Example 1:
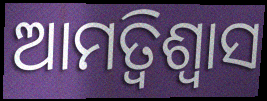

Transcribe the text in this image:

ଆମତ୍ବିଶ୍ୱାସ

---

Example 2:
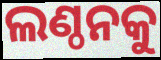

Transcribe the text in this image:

ଲଣ୍ଠନକୁ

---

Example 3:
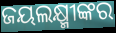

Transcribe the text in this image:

ଜୟଲକ୍ଷ୍ମୀଙ୍କର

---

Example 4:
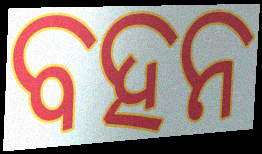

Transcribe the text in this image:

ବହନ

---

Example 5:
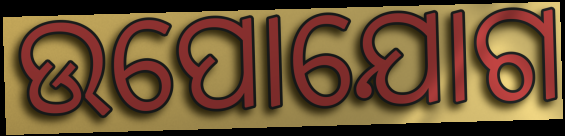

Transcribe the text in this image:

ଉପୋଯୋଗ